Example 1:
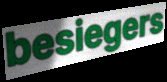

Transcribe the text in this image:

besiegers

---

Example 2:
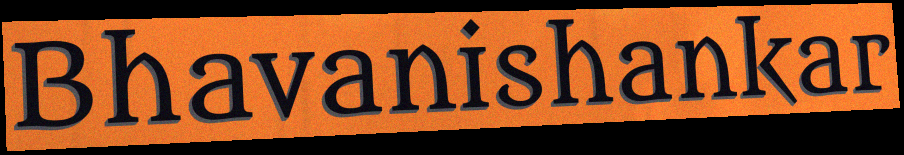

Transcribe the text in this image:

Bhavanishankar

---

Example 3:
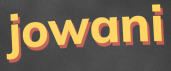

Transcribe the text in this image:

jowani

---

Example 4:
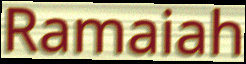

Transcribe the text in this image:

Ramaiah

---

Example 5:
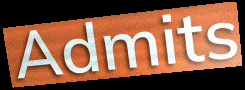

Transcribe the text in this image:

Admits